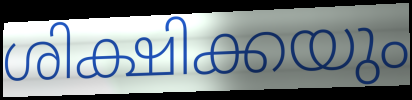
ശിക്ഷിക്കയും